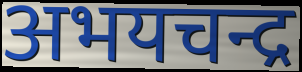
अभयचन्द्र